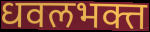
धवलभक्त